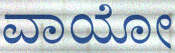
ವಾಯೋ